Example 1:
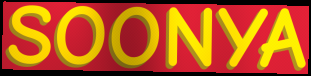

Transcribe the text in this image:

SOONYA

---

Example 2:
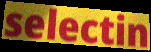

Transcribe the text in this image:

selectin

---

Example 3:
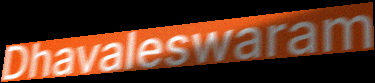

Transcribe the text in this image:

Dhavaleswaram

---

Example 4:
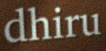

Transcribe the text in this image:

dhiru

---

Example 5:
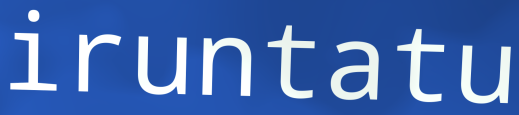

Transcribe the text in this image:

iruntatu